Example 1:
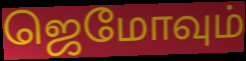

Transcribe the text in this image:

ஜெமோவும்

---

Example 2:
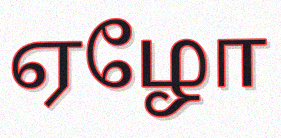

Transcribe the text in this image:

ஏழோ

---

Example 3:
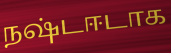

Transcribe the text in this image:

நஷ்டஈடாக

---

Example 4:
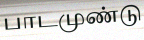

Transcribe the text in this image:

பாடமுண்டு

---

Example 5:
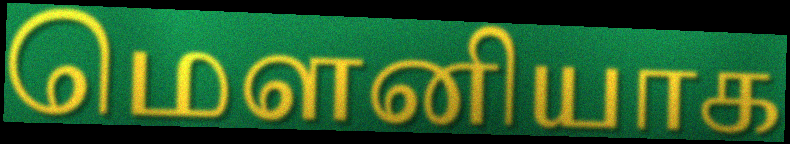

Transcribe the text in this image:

மெளனியாக